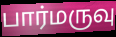
பார்மருவு